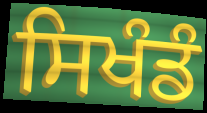
ਸਿਖੰਡੰ